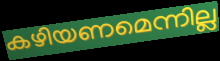
കഴിയണമെന്നില്ല